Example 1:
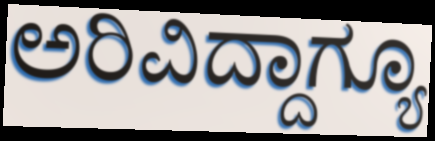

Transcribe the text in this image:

ಅರಿವಿದ್ದಾಗ್ಯೂ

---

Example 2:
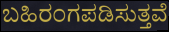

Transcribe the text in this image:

ಬಹಿರಂಗಪಡಿಸುತ್ತವೆ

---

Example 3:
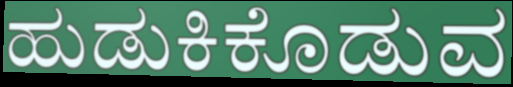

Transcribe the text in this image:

ಹುಡುಕಿಕೊಡುವ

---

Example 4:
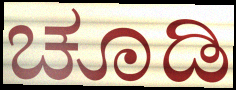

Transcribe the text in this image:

ಚೂಡಿ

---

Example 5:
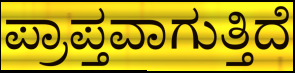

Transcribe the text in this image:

ಪ್ರಾಪ್ತವಾಗುತ್ತಿದೆ